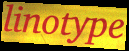
linotype